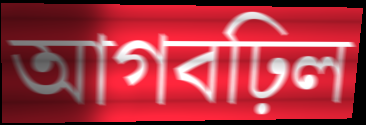
আগবঢ়িল